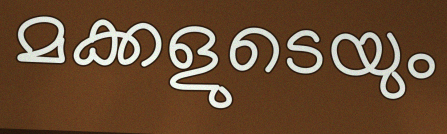
മക്കളുടെയും